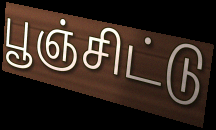
பூஞ்சிட்டு